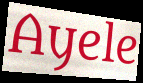
Ayele